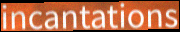
incantations